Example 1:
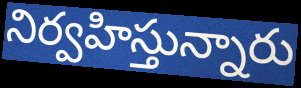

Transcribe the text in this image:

నిర్వహిస్తున్నారు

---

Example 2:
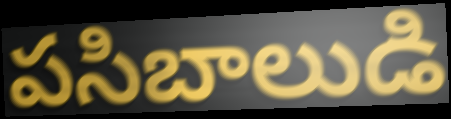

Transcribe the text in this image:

పసిబాలుడి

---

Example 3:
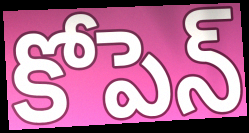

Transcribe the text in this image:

కోపెన్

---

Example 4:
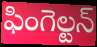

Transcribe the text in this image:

ఫింగెల్టన్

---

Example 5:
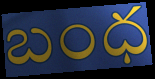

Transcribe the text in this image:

బంధ